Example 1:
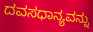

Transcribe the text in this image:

ದವಸಧಾನ್ಯವನ್ನು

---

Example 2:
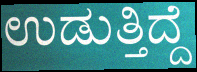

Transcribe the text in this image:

ಉಡುತ್ತಿದ್ದೆ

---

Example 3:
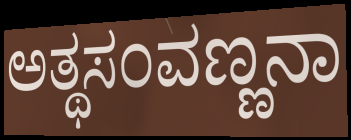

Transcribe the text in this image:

ಅತ್ಥಸಂವಣ್ಣನಾ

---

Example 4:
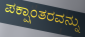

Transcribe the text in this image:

ಪಕ್ಷಾಂತರವನ್ನು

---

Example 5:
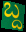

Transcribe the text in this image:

ಬ್ದ